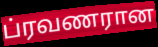
ப்ரவணரான